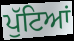
ਪੁੱਟਿਆਂ